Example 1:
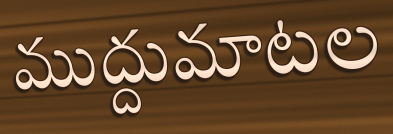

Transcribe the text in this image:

ముద్దుమాటల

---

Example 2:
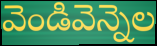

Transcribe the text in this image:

వెండివెన్నెల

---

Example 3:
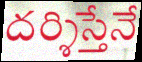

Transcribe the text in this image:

దర్శిస్తేనే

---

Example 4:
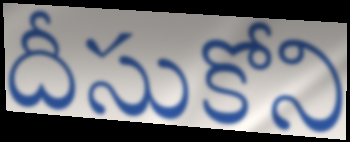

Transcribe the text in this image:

దీసుకోని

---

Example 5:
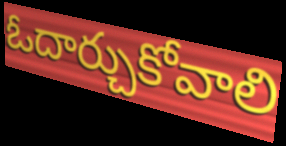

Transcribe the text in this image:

ఓదార్చుకోవాలి